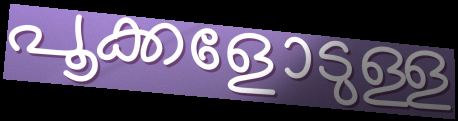
പൂക്കളോടുള്ള